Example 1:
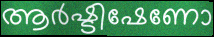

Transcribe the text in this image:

ആർഷ്ടിഷേണോ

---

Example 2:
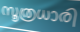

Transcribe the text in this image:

സൂത്രധാരി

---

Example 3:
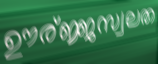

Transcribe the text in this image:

ഊര്ജ്ജസ്വലത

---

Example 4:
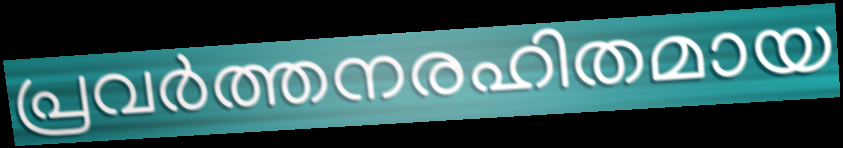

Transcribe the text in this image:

പ്രവർത്തനരഹിതമായ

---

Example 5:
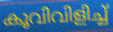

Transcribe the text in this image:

കൂവിവിളിച്ച്